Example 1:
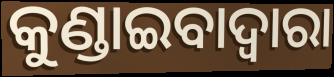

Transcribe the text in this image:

କୁଣ୍ଡାଇବାଦ୍ୱାରା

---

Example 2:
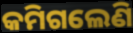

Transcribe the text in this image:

କମିଗଲେଣି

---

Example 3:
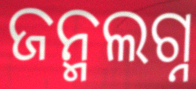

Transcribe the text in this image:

ଜନ୍ମଲଗ୍ନ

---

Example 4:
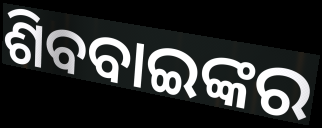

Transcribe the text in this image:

ଶିବବାଇଙ୍କର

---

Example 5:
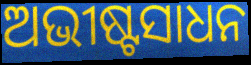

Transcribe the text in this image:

ଅଭୀଷ୍ଟସାଧନ